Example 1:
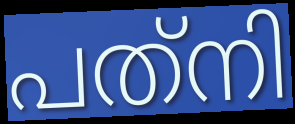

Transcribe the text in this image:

പത്‌നി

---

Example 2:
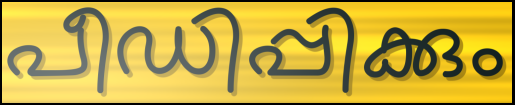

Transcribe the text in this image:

പീഡിപ്പിക്കും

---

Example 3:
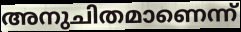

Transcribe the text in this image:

അനുചിതമാണെന്ന്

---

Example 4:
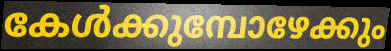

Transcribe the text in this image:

കേൾക്കുമ്പോഴേക്കും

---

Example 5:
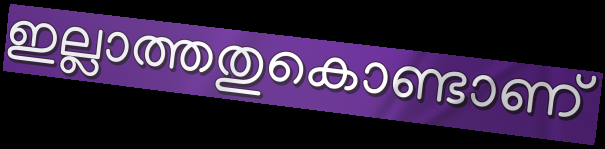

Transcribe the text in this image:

ഇല്ലാത്തതുകൊണ്ടാണ്